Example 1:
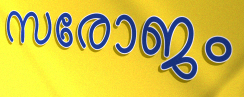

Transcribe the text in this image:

സരോജം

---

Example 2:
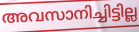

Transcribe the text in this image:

അവസാനിച്ചിട്ടില്ല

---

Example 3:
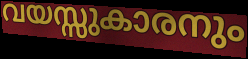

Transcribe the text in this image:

വയസ്സുകാരനും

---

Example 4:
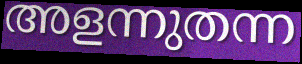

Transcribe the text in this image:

അളന്നുതന്ന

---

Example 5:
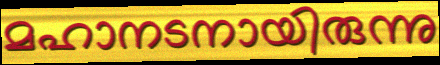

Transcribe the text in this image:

മഹാനടനായിരുന്നു